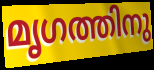
മൃഗത്തിനു